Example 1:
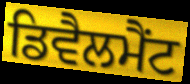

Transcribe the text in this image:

ਡਿਵੈਲਮੈਂਟ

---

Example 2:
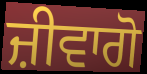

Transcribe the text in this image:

ਜ਼ੀਵਾਗੋ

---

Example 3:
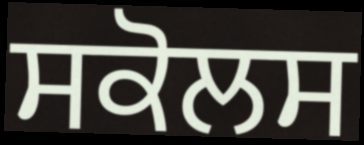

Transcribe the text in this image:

ਸਕੋਲਸ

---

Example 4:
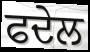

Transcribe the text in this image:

ਫਦੇਲ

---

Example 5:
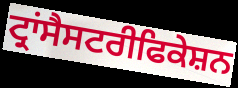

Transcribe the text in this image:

ਟ੍ਰਾਂਸੈਸਟਰੀਫਿਕੇਸ਼ਨ